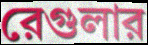
রেগুলার